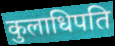
कुलाधिपति